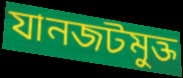
যানজটমুক্ত